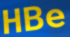
HBe